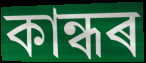
কান্ধৰ